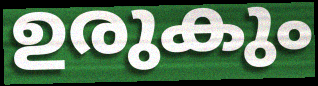
ഉരുകും